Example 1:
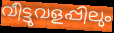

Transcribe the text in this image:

വീട്ടുവളപ്പിലും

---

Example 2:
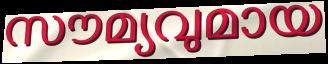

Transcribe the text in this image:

സൗമ്യവുമായ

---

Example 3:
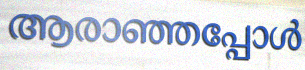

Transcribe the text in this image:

ആരാഞ്ഞപ്പോൾ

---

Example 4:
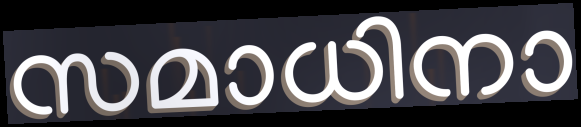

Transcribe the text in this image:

സമാധിനാ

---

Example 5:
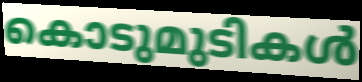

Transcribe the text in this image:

കൊടുമുടികൾ